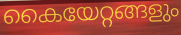
കൈയേറ്റങ്ങളും